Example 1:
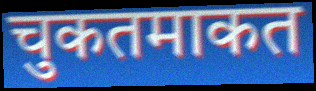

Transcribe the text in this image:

चुकतमाकत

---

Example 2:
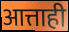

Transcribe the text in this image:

आत्ताही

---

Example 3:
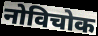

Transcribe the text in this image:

नोविचोक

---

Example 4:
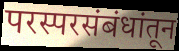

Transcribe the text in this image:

परस्परसंबंधांतून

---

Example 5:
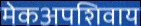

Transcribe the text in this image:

मेकअपशिवाय